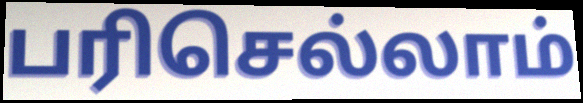
பரிசெல்லாம்